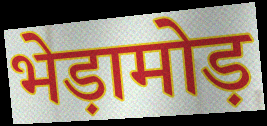
भेड़ामोड़